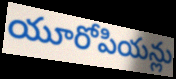
యూరోపియన్లు